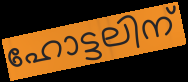
ഹോട്ടലിന്